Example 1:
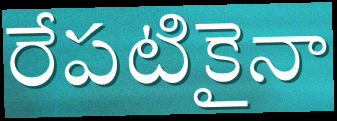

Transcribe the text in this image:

రేపటికైనా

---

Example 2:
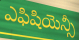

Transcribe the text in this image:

ఎఫిషియెన్సీ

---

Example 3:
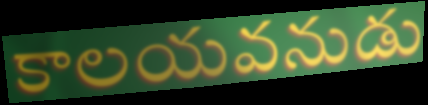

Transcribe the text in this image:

కాలయవనుడు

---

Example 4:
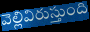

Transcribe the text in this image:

వెల్లివిరుస్తుంది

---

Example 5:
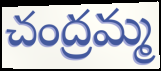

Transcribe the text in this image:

చంద్రమ్మ